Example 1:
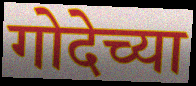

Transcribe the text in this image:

गोदेच्या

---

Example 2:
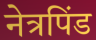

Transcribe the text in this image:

नेत्रपिंड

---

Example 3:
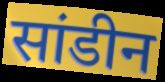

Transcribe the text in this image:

सांडीन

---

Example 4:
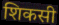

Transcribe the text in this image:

शिकसी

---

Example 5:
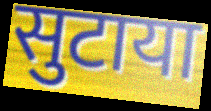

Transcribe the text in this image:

सुटाया